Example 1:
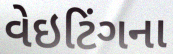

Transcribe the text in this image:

વેઇટિંગના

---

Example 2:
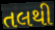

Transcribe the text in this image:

તલથી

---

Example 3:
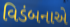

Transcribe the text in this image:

વિડંબનાએ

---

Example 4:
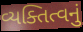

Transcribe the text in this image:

વ્યક્તિત્વનું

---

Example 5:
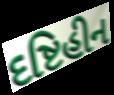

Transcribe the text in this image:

દષ્ટિહીન